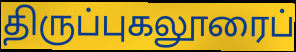
திருப்புகலூரைப்